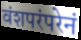
वंशपरंपरेनं